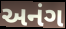
અનંગ